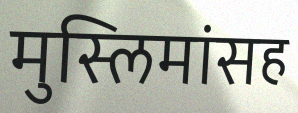
मुस्लिमांसह